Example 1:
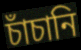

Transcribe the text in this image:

চাঁচানি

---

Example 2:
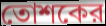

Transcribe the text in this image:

তোশকের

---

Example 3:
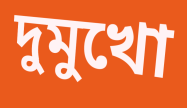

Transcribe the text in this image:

দুমুখো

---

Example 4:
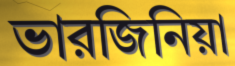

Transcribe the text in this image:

ভারজিনিয়া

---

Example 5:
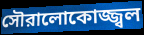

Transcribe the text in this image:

সৌরালোকোজ্জ্বল